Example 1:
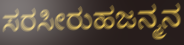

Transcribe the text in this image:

ಸರಸೀರುಹಜನ್ಮನ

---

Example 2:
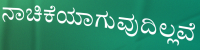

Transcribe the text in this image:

ನಾಚಿಕೆಯಾಗುವುದಿಲ್ಲವೆ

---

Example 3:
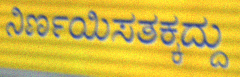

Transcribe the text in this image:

ನಿರ್ಣಯಿಸತಕ್ಕದ್ದು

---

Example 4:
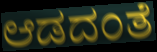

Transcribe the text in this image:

ಆಡದಂತೆ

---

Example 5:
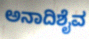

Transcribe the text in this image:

ಅನಾದಿಶೈವ